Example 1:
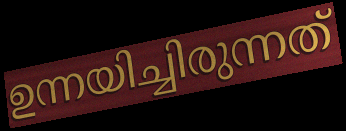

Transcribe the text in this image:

ഉന്നയിച്ചിരുന്നത്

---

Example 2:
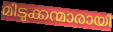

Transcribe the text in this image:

മിടുക്കന്മാരായി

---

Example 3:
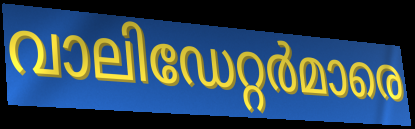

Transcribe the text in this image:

വാലിഡേറ്റർമാരെ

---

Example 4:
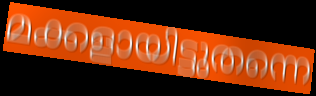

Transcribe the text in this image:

മക്കളായിട്ടുതന്നെ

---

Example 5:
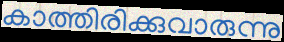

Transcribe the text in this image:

കാത്തിരിക്കുവാരുന്നു